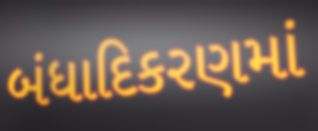
બંધાદિકરણમાં